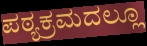
ಪಠ್ಯಕ್ರಮದಲ್ಲೂ